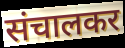
संचालकर